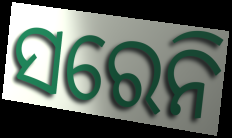
ସରେନି